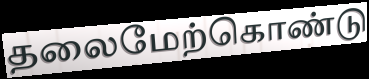
தலைமேற்கொண்டு